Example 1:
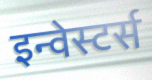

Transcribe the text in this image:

इन्वेस्टर्स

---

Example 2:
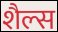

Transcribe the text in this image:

शैल्स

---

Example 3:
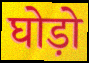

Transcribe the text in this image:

घोड़ो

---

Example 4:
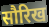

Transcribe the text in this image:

सौरिख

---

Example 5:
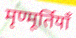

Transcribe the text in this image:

मृण्मूर्तियाँ